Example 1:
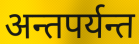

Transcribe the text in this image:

अन्तपर्यन्त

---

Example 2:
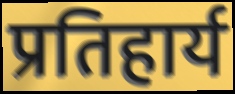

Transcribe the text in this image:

प्रतिहार्य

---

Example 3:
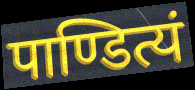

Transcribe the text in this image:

पाण्डित्यं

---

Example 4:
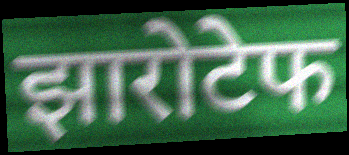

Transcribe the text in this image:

झारोटेफ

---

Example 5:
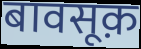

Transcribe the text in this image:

बावसूक़